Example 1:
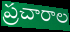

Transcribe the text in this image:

ప్రచారాల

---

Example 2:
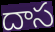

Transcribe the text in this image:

దాస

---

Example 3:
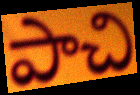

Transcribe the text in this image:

పాచి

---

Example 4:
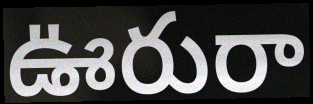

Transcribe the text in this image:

ఊరురా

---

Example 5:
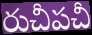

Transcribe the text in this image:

రుచీపచీ